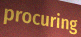
procuring